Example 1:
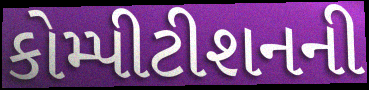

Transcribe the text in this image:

કોમ્પીટીશનની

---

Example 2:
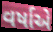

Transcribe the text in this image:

વર્ષાએ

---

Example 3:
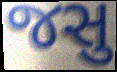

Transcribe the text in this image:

જસુ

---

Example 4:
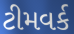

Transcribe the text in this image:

ટીમવર્ક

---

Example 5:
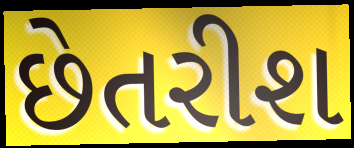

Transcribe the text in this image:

છેતરીશ